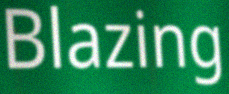
Blazing